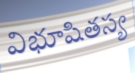
విభూషితస్య